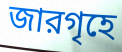
জারগৃহে